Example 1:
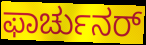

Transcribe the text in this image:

ಫಾರ್ಚುನರ್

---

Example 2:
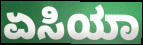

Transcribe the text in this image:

ಏಸಿಯಾ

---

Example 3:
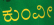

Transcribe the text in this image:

ಕುಂವೀ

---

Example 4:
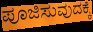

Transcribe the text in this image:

ಪೂಜಿಸುವುದಕ್ಕೆ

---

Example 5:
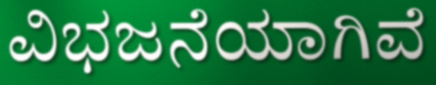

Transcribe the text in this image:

ವಿಭಜನೆಯಾಗಿವೆ